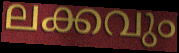
ലക്കവും